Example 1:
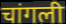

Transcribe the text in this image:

चांगली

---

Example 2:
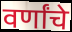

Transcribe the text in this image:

वर्णांचे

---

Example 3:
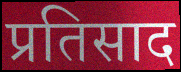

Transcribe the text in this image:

प्रतिसाद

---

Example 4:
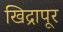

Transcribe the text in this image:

खिद्रापूर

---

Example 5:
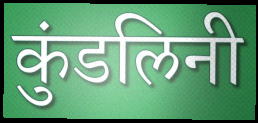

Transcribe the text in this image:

कुंडलिनी